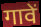
गावें